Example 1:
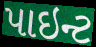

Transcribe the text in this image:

પાઇન્ટ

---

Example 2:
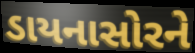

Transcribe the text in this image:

ડાયનાસોરને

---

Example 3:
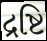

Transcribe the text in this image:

દ્રષ્ટિ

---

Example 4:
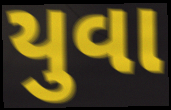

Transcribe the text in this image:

યુવા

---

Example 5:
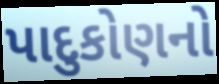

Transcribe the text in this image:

પાદુકોણનો